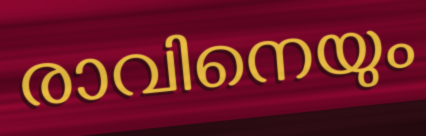
രാവിനെയും